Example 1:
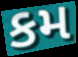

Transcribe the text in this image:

કમ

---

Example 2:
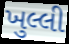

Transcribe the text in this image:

ખુલ્લી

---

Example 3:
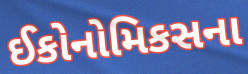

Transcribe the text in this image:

ઈકોનોમિકસના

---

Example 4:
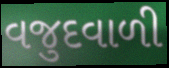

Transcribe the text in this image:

વજુદવાળી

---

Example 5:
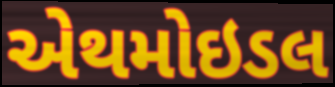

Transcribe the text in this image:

એથમોઇડલ